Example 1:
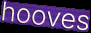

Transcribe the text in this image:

hooves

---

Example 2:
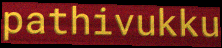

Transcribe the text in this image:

pathivukku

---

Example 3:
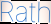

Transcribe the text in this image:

Rath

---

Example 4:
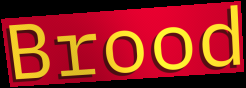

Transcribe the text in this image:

Brood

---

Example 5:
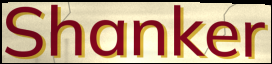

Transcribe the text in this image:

Shanker